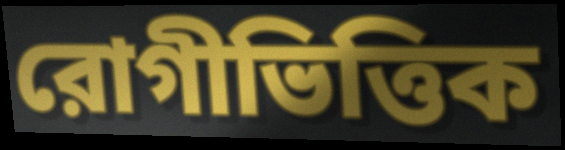
রোগীভিত্তিক